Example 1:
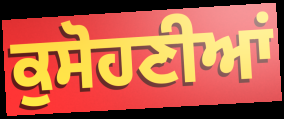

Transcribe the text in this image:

ਕੁਸੋਹਣੀਆਂ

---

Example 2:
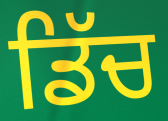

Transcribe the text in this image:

ਡਿੱਚ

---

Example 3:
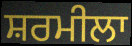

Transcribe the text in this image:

ਸ਼ਰਮੀਲਾ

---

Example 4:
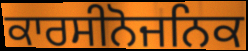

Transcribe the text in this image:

ਕਾਰਸੀਨੋਜਨਿਕ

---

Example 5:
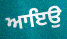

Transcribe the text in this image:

ਆਇਉ